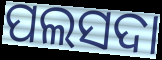
ପଲସଦା